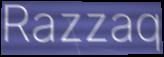
Razzaq